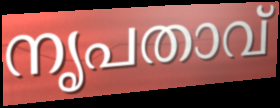
നൃപതാവ്